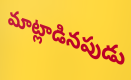
మాట్లాడినపుడు